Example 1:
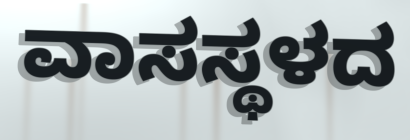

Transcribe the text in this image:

ವಾಸಸ್ಥಳದ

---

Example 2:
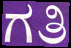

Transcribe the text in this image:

ಗತಿ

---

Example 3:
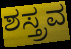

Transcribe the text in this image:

ಶಸ್ತ್ರವ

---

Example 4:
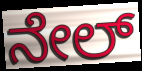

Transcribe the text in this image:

ನೇಲ್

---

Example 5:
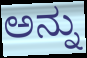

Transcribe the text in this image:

ಅನ್ನು